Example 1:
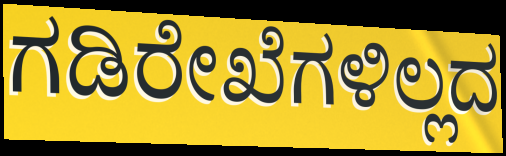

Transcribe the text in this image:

ಗಡಿರೇಖೆಗಳಿಲ್ಲದ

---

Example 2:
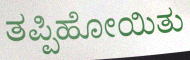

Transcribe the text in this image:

ತಪ್ಪಿಹೋಯಿತು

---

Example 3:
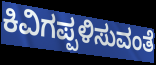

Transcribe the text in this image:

ಕಿವಿಗಪ್ಪಳಿಸುವಂತೆ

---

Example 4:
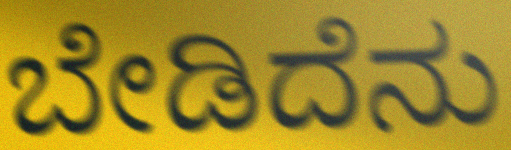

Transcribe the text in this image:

ಬೇಡಿದೆನು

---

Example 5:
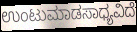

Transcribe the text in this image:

ಉಂಟುಮಾಡಸಾಧ್ಯವಿದೆ